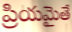
ప్రియమైతే